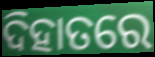
ଦିହାତରେ